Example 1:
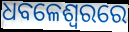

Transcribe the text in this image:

ଧବଳେଶ୍ଵରରେ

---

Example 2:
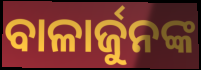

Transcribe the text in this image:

ବାଳାର୍ଜୁନଙ୍କ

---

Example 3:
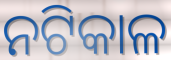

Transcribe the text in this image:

ନଟିକାଳ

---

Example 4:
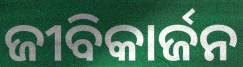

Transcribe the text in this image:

ଜୀବିକାର୍ଜନ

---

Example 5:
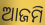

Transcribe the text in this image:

ଆଜମି